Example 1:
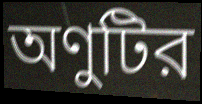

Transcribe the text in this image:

অণুটির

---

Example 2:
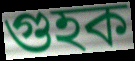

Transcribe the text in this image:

গুহক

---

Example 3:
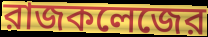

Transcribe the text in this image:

রাজকলেজের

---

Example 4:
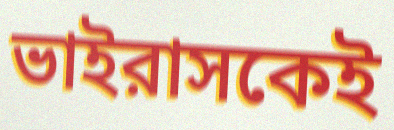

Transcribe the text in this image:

ভাইরাসকেই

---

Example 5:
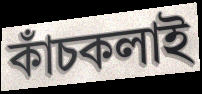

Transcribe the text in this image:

কাঁচকলাই